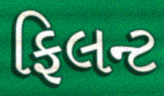
ફિલન્ટ